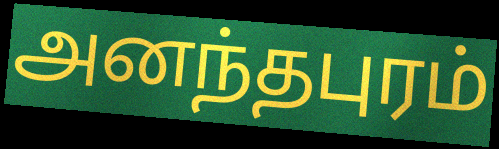
அனந்தபுரம்